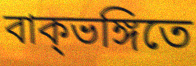
বাক্ভঙ্গিতে